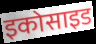
इकोसाइड